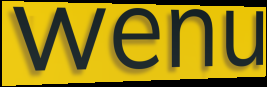
wenu